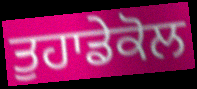
ਤੁਹਾਡੇਕੋਲ